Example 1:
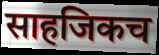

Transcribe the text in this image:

साहजिकच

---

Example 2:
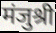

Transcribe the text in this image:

मंजुश्री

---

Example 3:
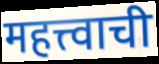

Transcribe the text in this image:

महत्त्वाची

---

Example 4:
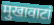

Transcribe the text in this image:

मुखावाटां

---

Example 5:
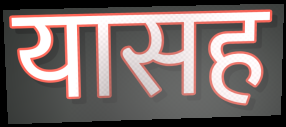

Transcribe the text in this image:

यासह